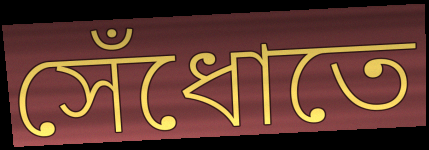
সেঁধোতে